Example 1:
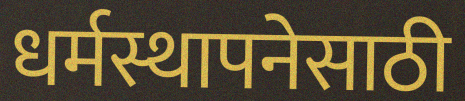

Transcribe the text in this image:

धर्मस्थापनेसाठी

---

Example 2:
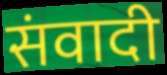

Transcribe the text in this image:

संवादी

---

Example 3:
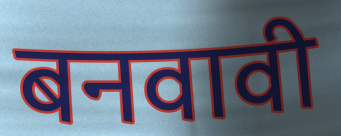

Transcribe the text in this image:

बनवावी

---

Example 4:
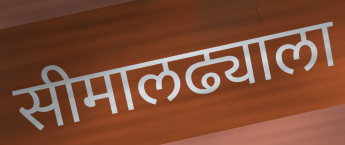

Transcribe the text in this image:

सीमालढ्याला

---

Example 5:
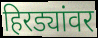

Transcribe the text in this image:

हिरड्यांवर